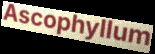
Ascophyllum